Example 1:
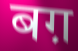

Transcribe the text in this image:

बग़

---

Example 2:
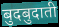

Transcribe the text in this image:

बुदबुदाती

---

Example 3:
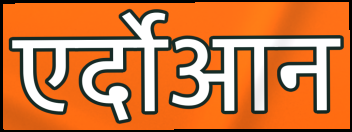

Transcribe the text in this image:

एर्दोआन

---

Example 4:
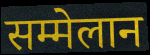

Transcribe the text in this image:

सम्मेलान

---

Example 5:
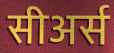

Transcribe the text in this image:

सीअर्स